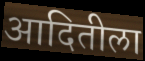
आदितीला